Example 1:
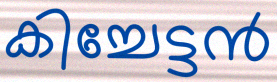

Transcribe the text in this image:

കിച്ചേട്ടൻ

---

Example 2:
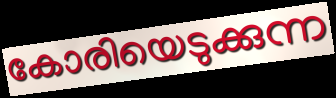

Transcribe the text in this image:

കോരിയെടുക്കുന്ന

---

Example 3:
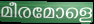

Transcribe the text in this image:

മീരമോളെ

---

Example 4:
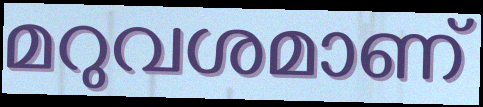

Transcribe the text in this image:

മറുവശമാണ്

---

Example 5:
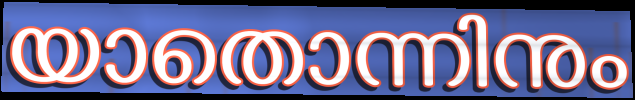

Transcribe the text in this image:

യാതൊന്നിനും